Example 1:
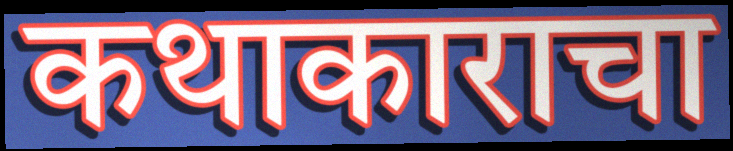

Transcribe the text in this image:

कथाकाराचा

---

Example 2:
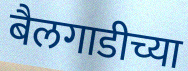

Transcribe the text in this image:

बैलगाडीच्या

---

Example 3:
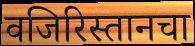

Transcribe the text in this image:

वजिरिस्तानचा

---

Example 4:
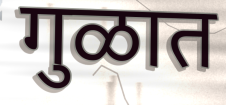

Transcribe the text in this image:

गुळात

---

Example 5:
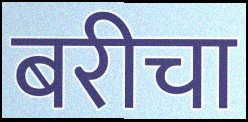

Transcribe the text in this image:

बरीचा